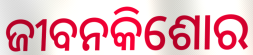
ଜୀବନକିଶୋର